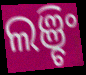
ଲଞ୍ଚିଂ